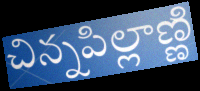
చిన్నపిల్లాణ్ణి